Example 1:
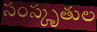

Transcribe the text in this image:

సంస్కృతుల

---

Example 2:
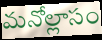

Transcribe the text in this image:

మనోల్లాసం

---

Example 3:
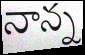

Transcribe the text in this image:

నాన్న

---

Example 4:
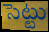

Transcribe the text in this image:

సెట్టు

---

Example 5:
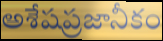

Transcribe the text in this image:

అశేషప్రజానీకం